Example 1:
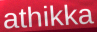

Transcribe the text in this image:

athikka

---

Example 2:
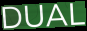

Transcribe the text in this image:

DUAL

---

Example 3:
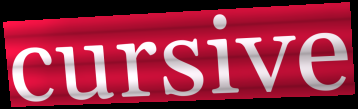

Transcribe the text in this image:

cursive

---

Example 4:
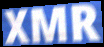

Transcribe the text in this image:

XMR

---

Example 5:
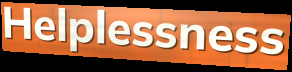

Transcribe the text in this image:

Helplessness